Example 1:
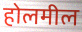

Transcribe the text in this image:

होलमील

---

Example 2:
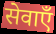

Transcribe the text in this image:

सेवाएँ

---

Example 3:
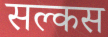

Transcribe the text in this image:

सल्कस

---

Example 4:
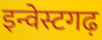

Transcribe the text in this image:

इन्वेस्टगढ़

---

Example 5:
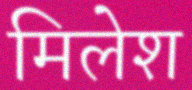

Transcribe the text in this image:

मिलेश